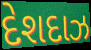
દેશદાઝ